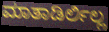
ಮಾತಾಡಿರ್ಲಿಲ್ಲ